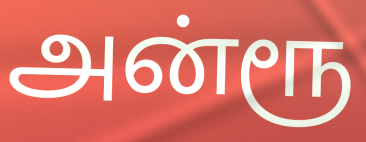
அன்ரூ